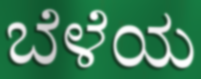
ಬೆಳೆಯ